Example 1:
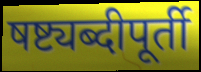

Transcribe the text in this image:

षष्ट्यब्दीपूर्ती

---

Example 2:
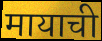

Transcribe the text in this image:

मायाची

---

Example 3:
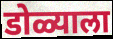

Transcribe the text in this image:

डोळ्याला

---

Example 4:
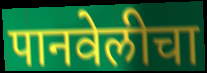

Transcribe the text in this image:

पानवेलीचा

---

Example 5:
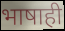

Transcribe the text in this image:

भाषाही